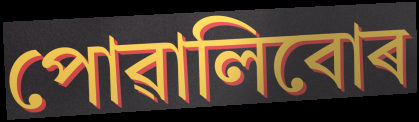
পোৱালিবোৰ